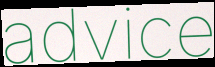
advice